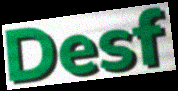
Desf